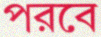
পরবে